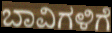
ಬಾವಿಗಳಿಗೆ